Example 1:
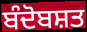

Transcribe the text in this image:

ਬੰਦੋਬਸ਼ਤ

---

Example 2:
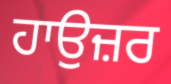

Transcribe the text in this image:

ਹਾਉਜ਼ਰ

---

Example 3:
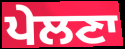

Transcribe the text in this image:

ਪੇਲਣਾ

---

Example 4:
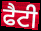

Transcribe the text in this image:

ਫੈਟੀ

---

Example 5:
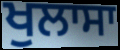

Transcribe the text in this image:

ਖੁਲਾਸਾ